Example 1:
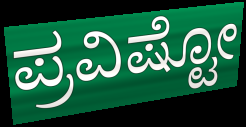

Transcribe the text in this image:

ಪ್ರವಿಷ್ಟೋ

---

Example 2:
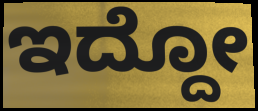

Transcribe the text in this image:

ಇದ್ದೋ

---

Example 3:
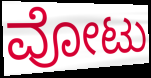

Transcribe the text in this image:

ವೋಟು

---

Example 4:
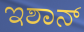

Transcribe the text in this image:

ಇಶಾನ್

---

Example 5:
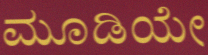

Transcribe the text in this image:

ಮೂಡಿಯೇ